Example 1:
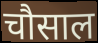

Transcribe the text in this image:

चौसाल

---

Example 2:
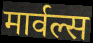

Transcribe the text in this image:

मार्वल्स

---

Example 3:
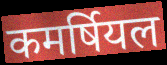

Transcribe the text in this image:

कमर्षियल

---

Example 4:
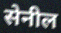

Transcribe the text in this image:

सेनील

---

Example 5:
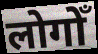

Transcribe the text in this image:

लोगोँ